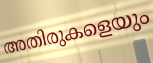
അതിരുകളെയും